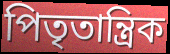
পিতৃতান্ত্ৰিক